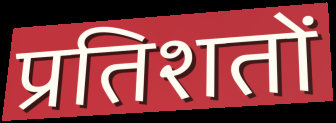
प्रतिशतों